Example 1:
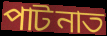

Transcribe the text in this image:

পাটনাত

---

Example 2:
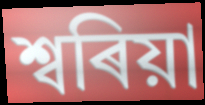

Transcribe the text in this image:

শ্বৰিয়া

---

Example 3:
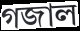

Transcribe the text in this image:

গজাল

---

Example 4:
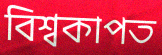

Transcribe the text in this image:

বিশ্বকাপত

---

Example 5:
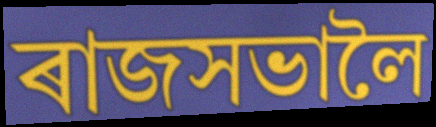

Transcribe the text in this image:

ৰাজসভালৈ